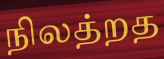
நிலத்றத